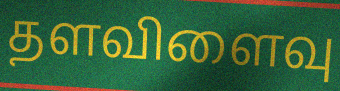
தளவிளைவு